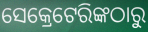
ସେକ୍ରେଟେରିଙ୍କଠାରୁ